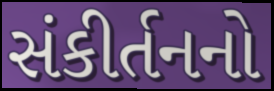
સંકીર્તનનો